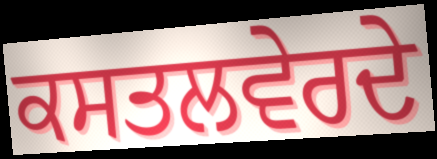
ਕਸਤਲਵੇਰਦੇ